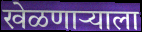
खेळणाऱ्याला